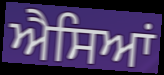
ਐਸਿਆਂ